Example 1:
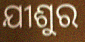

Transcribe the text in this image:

ଯୀଶୁର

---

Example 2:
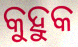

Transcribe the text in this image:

କୁହୁକ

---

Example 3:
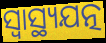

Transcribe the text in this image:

ସ୍ୱାସ୍ଥ୍ୟଯତ୍ନ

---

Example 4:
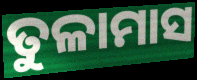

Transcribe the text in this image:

ତୁଳାମାସ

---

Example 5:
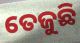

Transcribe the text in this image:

ତେଜୁଛି